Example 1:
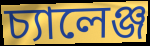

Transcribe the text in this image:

চ্যালেঞ্জ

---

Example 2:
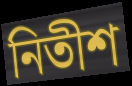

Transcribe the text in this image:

নিতীশ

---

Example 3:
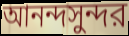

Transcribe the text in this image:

আনন্দসুন্দর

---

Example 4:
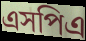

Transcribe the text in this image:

এসপিএ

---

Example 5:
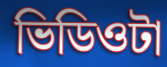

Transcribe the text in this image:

ভিডিওটা